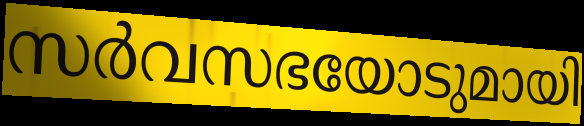
സർവസഭയോടുമായി